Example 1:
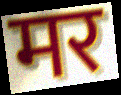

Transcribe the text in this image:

मर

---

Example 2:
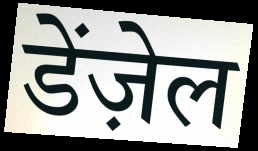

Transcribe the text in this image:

डेंज़ेल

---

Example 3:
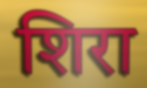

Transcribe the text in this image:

शिरा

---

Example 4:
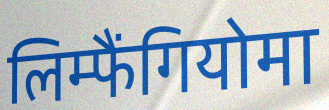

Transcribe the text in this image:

लिम्फैंगियोमा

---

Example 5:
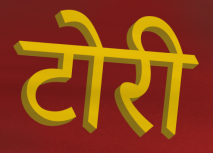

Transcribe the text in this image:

टोरी